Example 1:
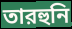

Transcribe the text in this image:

তারহুনি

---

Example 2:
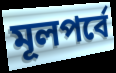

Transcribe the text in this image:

মূলপর্বে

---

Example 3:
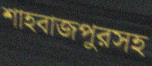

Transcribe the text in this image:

শাহবাজপুরসহ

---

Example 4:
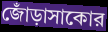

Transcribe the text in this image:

জোঁড়াসাকোর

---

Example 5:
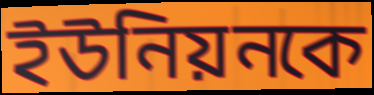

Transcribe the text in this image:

ইউনিয়নকে